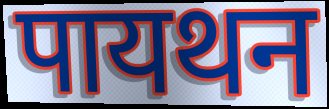
पायथन